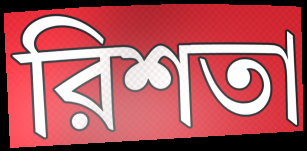
রিশতা